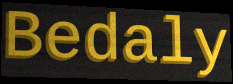
Bedaly